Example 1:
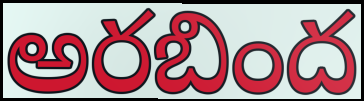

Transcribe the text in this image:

అరబింద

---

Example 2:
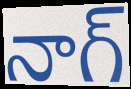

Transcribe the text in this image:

నాగ్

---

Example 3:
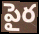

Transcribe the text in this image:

పైర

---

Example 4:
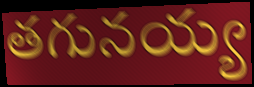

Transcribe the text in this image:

తగునయ్య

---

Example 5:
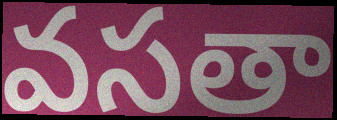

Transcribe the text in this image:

వసతా